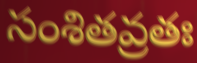
సంశితవ్రతః